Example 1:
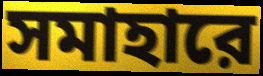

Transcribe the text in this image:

সমাহারে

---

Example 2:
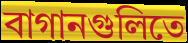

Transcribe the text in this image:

বাগানগুলিতে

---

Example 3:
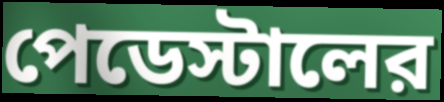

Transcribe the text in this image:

পেডেস্টালের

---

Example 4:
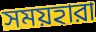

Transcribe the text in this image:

সময়হারা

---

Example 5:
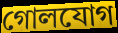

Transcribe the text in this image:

গোলযোগ